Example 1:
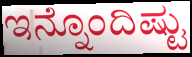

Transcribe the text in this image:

ಇನ್ನೊಂದಿಷ್ಟು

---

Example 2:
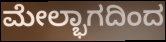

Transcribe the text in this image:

ಮೇಲ್ಭಾಗದಿಂದ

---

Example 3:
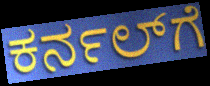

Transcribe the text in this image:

ಕರ್ನಲ್‌ಗೆ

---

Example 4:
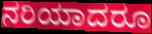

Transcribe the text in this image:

ನರಿಯಾದರೂ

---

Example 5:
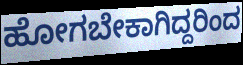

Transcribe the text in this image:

ಹೋಗಬೇಕಾಗಿದ್ದರಿಂದ